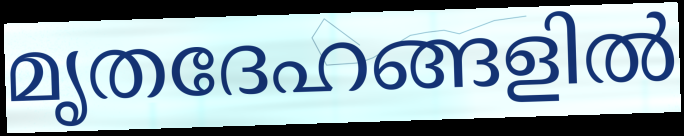
മൃതദേഹങ്ങളിൽ